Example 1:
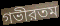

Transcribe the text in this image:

গভীরতম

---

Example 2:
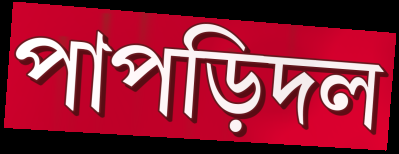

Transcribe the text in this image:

পাপড়িদল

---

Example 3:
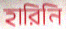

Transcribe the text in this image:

হারিনি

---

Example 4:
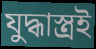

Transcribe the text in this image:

যুদ্ধাস্ত্রই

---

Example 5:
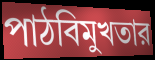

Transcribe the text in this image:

পাঠবিমুখতার